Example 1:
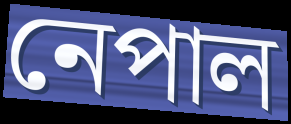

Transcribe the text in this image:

নেপাল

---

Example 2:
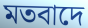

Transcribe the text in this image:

মতবাদে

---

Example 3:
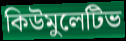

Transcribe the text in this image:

কিউমুলেটিভ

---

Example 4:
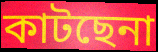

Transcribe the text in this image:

কাটছেনা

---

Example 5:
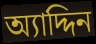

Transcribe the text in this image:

অ্যাদ্দিন